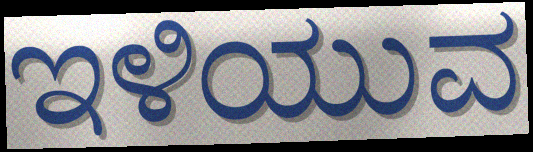
ಇಳಿಯುವ